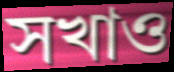
সখাও